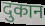
दुकान